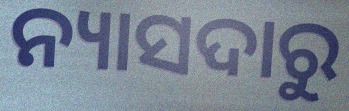
ନ୍ୟାସଦାରୁ